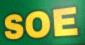
SOE